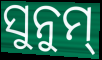
ସୁନୁମ୍